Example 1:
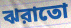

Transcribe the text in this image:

ঝরাতো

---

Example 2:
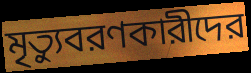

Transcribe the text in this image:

মৃত্যুবরণকারীদের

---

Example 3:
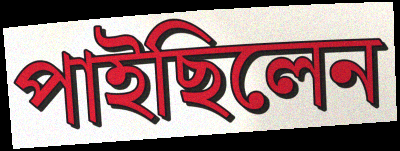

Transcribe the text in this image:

পাইছিলেন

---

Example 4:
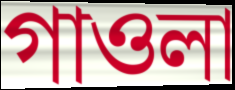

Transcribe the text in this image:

গাওলা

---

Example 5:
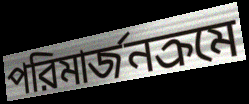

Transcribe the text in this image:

পরিমার্জনক্রমে